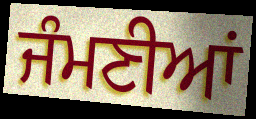
ਜੰਮਣੀਆਂ